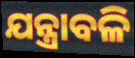
ଯନ୍ତ୍ରାବଳି